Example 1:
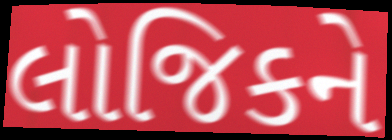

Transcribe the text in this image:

લોજિકને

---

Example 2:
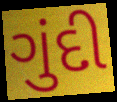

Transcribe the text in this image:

ગુંદી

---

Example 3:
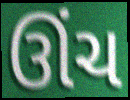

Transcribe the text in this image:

ઊંચ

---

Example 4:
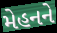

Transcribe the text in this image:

મેહનને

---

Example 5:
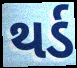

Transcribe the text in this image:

થર્ડ